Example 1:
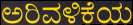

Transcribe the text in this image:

ಅರಿವಳಿಕೆಯ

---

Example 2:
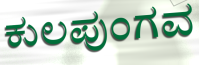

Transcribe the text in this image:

ಕುಲಪುಂಗವ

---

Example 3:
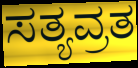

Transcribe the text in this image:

ಸತ್ಯವ್ರತ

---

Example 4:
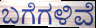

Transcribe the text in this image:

ಬಗೆಗಳಿವೆ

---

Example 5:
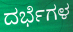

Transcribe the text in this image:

ದರ್ಭೆಗಳ